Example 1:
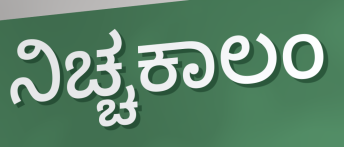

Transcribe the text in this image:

ನಿಚ್ಚಕಾಲಂ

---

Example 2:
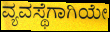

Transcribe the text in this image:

ವ್ಯವಸ್ಥೆಗಾಗಿಯೇ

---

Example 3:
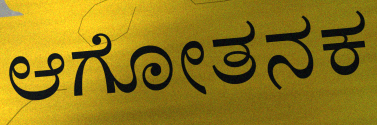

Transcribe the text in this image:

ಆಗೋತನಕ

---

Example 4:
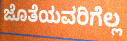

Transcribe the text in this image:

ಜೊತೆಯವರಿಗೆಲ್ಲ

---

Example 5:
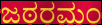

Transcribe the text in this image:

ಜಠರಮಂ